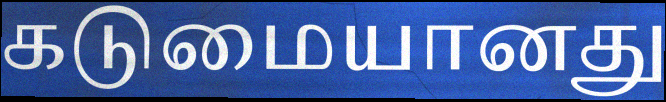
கடுமையானது